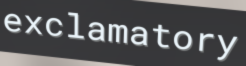
exclamatory